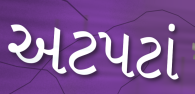
અટપટાં